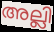
അല്ലി